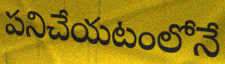
పనిచేయటంలోనే